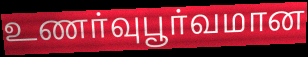
உணர்வுபூர்வமான